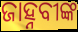
ଜାହ୍ନବୀଙ୍କ